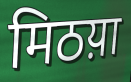
मिठय़ा